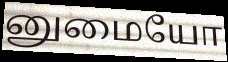
னுமையோ